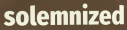
solemnized